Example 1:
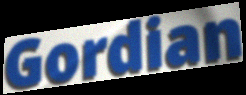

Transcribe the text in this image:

Gordian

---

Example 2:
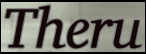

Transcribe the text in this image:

Theru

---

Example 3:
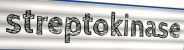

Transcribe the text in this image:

streptokinase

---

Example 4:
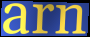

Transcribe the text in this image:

arn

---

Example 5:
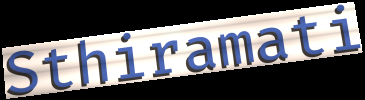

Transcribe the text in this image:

Sthiramati